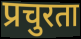
प्रचुरता